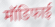
मॉडिफाई